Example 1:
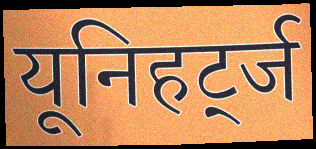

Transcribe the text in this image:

यूनिहर्ट्ज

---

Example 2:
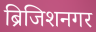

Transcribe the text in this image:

ब्रिजिशनगर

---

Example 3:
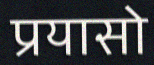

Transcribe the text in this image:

प्रयासो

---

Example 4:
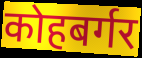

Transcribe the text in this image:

कोहबर्गर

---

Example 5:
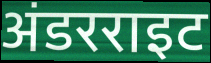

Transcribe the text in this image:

अंडरराइट